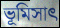
ভূমিসাৎ